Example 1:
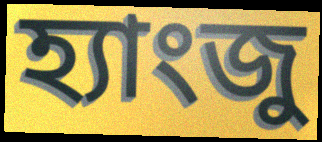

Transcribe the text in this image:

হ্যাংজু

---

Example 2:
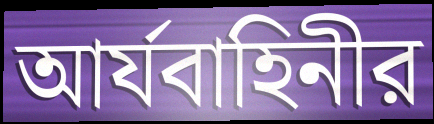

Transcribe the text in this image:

আর্যবাহিনীর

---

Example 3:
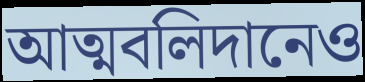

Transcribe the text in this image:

আত্মবলিদানেও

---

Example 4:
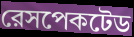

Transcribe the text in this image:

রেসপেকটেড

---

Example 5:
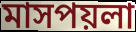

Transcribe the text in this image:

মাসপয়লা